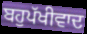
ਬਹੁਪੱਖੀਵਾਦ